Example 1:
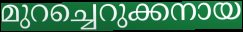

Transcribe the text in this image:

മുറച്ചെറുക്കനായ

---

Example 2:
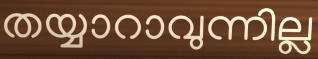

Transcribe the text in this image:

തയ്യാറാവുന്നില്ല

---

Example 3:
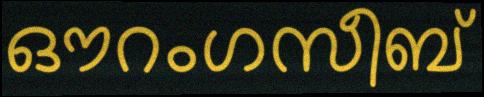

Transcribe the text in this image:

ഔറംഗസീബ്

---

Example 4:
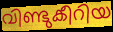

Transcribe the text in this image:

വിണ്ടുകീറിയ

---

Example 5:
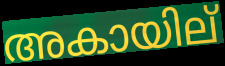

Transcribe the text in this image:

അകായില്